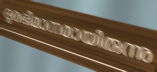
ദുരഭിമാനമായിരുന്നു